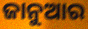
ଜାନୁଆର